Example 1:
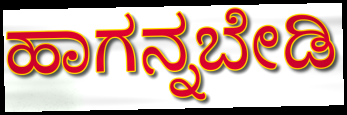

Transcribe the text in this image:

ಹಾಗನ್ನಬೇಡಿ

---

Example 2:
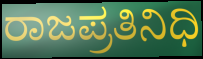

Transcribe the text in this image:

ರಾಜಪ್ರತಿನಿಧಿ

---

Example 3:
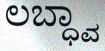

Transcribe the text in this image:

ಲಬ್ಧ್ವಾ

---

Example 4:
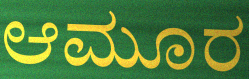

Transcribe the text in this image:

ಆಮೂರ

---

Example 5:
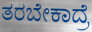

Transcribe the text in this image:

ತರಬೇಕಾದ್ರೆ